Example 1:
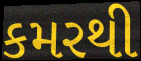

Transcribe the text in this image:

કમરથી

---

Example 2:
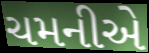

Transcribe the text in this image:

ચમનીએ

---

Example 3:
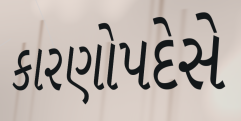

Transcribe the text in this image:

કારણોપદેસે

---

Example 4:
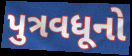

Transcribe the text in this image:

પુત્રવધૂનો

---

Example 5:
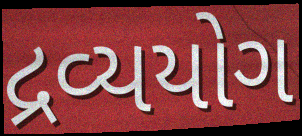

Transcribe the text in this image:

દ્રવ્યયોગ